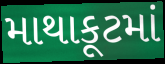
માથાકૂટમાં